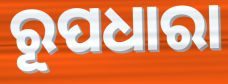
ରୂପଧାରା